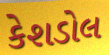
કેશડોલ